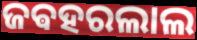
ଜଵହରଲାଲ